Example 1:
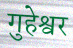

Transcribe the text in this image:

गुहेश्वर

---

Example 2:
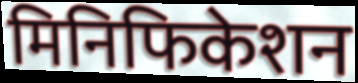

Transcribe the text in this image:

मिनिफिकेशन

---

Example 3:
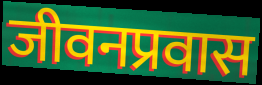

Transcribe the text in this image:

जीवनप्रवास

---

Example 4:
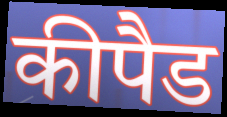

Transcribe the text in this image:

कीपैड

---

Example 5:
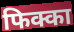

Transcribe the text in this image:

फिक्का